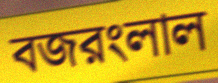
বজরংলাল